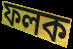
ফলক